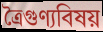
ত্রৈগুণ্যবিষয়